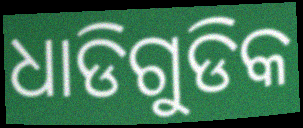
ଧାଡିଗୁଡିକ